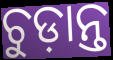
ଚୁଡ଼ାନ୍ତ